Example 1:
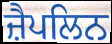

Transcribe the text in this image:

ਜ਼ੈਪਲਿਨ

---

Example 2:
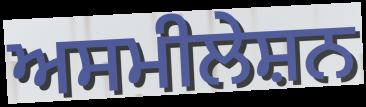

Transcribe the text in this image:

ਅਸਮੀਲੇਸ਼ਨ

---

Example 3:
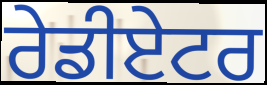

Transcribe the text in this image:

ਰੇਡੀਏਟਰ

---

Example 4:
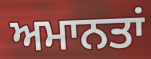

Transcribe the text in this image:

ਅਮਾਨਤਾਂ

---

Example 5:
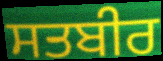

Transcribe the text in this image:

ਸਤਬੀਰ